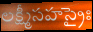
లక్ష్మీసహస్రైః